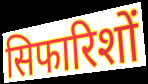
सिफारिशों